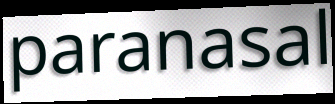
paranasal